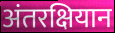
अंतरक्षियान